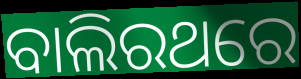
ବାଲିରଥରେ